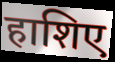
हाशिए